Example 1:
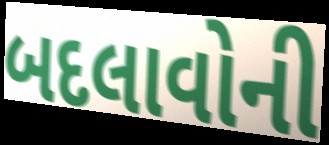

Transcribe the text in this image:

બદલાવોની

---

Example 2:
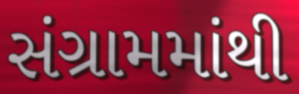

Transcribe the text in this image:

સંગ્રામમાંથી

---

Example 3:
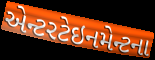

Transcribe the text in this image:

એન્ટરટેઇનમેન્ટના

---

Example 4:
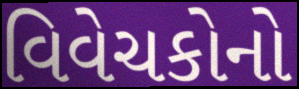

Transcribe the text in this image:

વિવેચકોનો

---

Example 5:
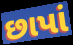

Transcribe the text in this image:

છાપાં